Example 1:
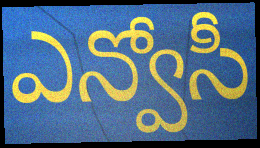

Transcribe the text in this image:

ఎన్వోసీ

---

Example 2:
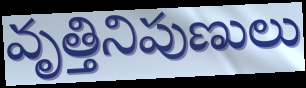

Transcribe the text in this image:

వృత్తినిపుణులు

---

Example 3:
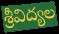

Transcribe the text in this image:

శ్రీవిద్యల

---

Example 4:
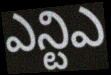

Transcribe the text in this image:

ఎన్టిఎ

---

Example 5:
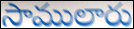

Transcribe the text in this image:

సాములారు